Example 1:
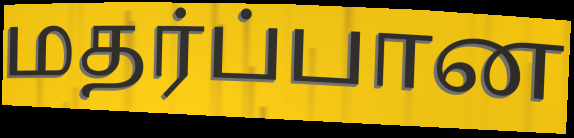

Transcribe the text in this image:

மதர்ப்பான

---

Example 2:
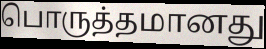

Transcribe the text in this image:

பொருத்தமானது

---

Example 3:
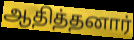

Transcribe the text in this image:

ஆதித்தனார்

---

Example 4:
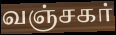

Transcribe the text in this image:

வஞ்சகர்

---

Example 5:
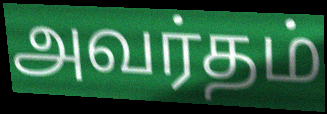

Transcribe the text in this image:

அவர்தம்